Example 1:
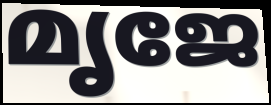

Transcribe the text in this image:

മൃജേ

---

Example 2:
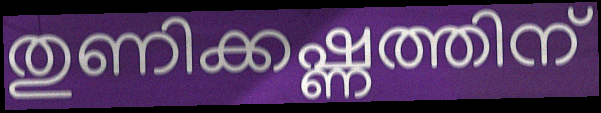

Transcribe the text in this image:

തുണിക്കഷ്ണത്തിന്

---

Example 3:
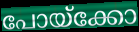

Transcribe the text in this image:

പോയ്ക്കോ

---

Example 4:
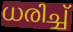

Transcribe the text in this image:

ധരിച്ച്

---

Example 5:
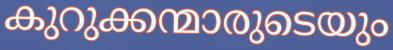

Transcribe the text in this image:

കുറുക്കന്മാരുടെയും